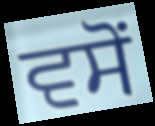
ਵਸੋਂ